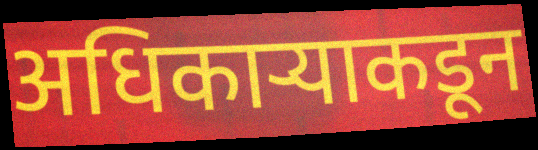
अधिकाऱ्याकडून